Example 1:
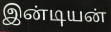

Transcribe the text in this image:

இன்டியன்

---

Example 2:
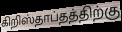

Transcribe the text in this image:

கிறிஸ்தாப்தத்திற்கு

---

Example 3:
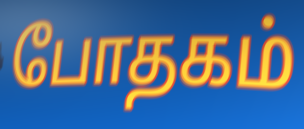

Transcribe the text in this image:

போதகம்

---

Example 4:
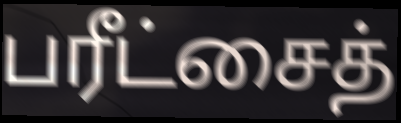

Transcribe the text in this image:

பரீட்சைத்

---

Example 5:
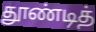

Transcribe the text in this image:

தூண்டித்